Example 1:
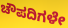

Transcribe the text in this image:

ಚೌಪದಿಗಳೇ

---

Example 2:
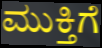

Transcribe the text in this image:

ಮುಕ್ತಿಗೆ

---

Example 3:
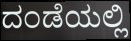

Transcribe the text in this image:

ದಂಡೆಯಲ್ಲಿ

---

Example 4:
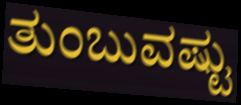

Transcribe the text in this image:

ತುಂಬುವಷ್ಟು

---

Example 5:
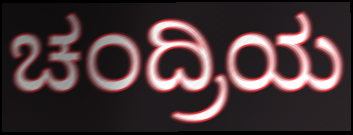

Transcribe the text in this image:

ಚಂದ್ರಿಯ